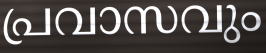
പ്രവാസവും